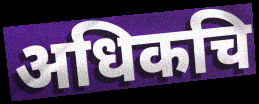
अधिकचि